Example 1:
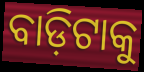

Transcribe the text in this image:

ବାଡ଼ିଟାକୁ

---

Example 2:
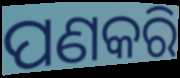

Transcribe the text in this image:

ପଣକରି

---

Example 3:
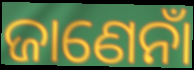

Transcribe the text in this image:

ଜାଣେନାଁ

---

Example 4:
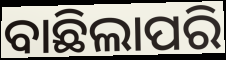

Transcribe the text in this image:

ବାଛିଲାପରି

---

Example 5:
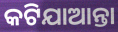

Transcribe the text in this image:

କଟିଯାଆନ୍ତା